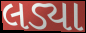
લડ્યા